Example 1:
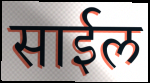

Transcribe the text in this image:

साईल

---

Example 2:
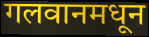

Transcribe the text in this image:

गलवानमधून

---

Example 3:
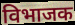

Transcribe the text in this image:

विभाजक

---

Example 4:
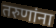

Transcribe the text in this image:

तरुणांना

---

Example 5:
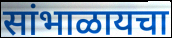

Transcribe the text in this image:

सांभाळायचा